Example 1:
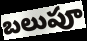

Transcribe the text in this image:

బలుపూ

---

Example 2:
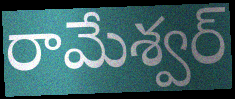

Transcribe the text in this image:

రామేశ్వర్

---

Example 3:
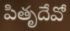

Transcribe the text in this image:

పితృదేవో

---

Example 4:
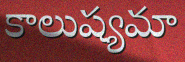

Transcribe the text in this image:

కాలుష్యమా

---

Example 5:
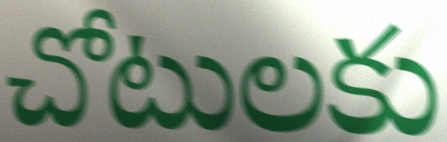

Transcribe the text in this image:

చోటులకు